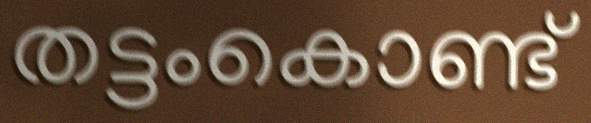
തട്ടംകൊണ്ട്